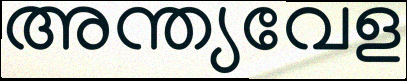
അന്ത്യവേള